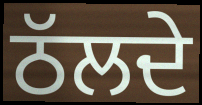
ਠੱਲਦੇ